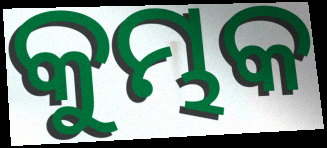
କୁମ୍ଭକ